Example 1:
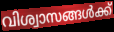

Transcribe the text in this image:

വിശ്വാസങ്ങൾക്ക്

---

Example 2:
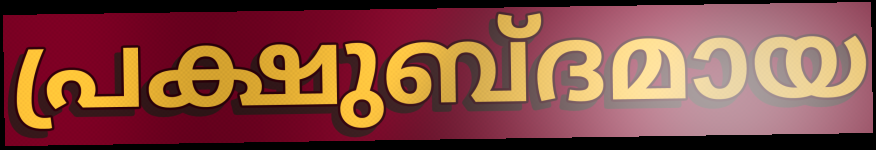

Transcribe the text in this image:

പ്രക്ഷുബ്ദമായ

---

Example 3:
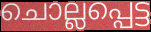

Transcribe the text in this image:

ചൊല്ലപ്പെട്ട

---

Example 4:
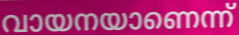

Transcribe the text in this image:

വായനയാണെന്ന്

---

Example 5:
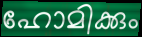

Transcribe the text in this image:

ഹോമിക്കും